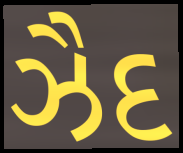
ઝૈદ